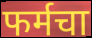
फर्मचा